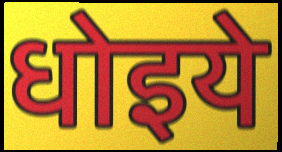
धोइये